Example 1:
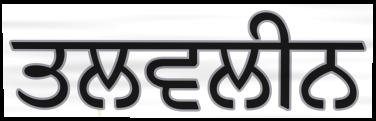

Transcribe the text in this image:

ਤਲਵਲੀਨ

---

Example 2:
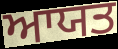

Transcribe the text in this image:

ਆਯਤ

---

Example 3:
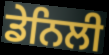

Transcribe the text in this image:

ਡੇਨਿਲੀ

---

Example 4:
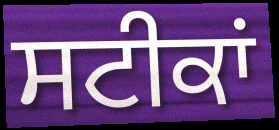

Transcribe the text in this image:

ਸਟੀਕਾਂ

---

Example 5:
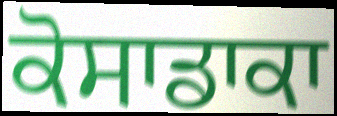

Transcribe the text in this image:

ਕੋਸਾਡਾਕਾ